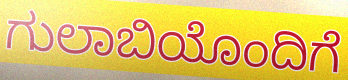
ಗುಲಾಬಿಯೊಂದಿಗೆ